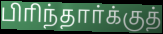
பிரிந்தார்க்குத்